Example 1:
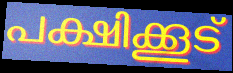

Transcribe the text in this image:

പക്ഷിക്കൂട്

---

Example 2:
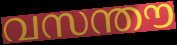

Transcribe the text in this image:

വസന്തൗ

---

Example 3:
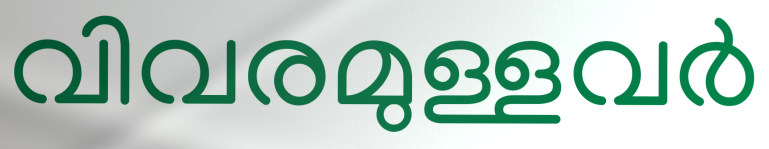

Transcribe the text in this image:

വിവരമുള്ളവർ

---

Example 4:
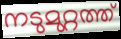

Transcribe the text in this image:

നടുമുറ്റത്ത്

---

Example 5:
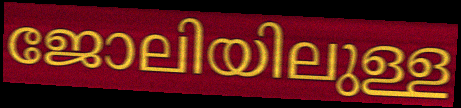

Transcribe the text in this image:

ജോലിയിലുള്ള